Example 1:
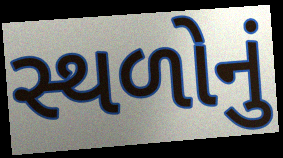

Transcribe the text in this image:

સ્થળોનું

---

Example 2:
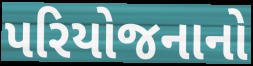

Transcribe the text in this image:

પરિયોજનાનો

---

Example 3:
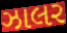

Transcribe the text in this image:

ઝાલર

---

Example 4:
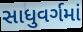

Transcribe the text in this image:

સાધુવર્ગમાં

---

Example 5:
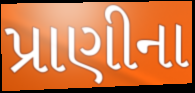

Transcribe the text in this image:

પ્રાણીના